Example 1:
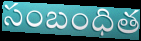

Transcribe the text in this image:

సంబంధిత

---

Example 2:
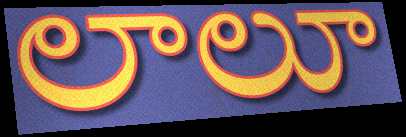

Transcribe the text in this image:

లాలూ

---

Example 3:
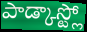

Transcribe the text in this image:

పాడ్కాస్ట్లో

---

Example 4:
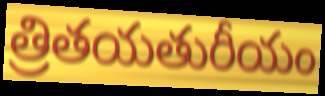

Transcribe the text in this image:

త్రితయతురీయం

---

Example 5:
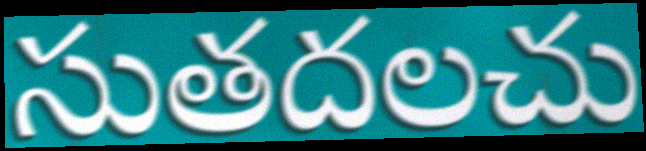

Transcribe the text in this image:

సుతదలచు